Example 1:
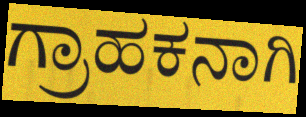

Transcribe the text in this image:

ಗ್ರಾಹಕನಾಗಿ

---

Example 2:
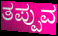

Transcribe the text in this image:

ತಪ್ಪುವ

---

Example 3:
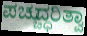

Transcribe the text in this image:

ಪಚ್ಚುದ್ಧರಿತ್ವಾ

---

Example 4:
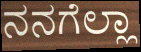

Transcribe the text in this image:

ನನಗೆಲ್ಲಾ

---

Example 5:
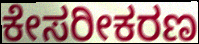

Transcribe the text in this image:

ಕೇಸರೀಕರಣ